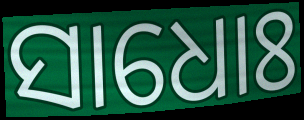
ସାଧୋଃ